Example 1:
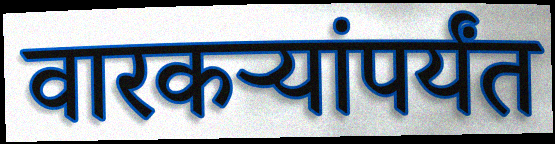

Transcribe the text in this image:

वारकऱ्यांपर्यंत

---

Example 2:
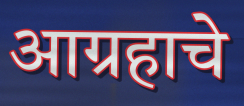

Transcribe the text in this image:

आग्रहाचे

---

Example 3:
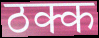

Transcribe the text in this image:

ठक्क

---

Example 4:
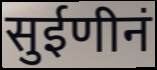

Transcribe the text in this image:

सुईणीनं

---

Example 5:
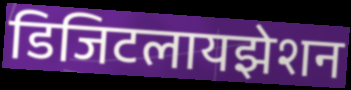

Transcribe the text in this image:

डिजिटलायझेशन